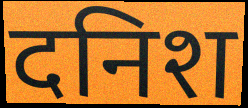
दनिश